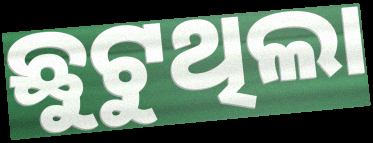
ଛୁଟୁଥିଲା